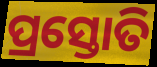
ପ୍ରସ୍ତୋତି